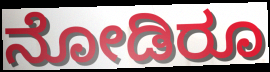
ನೋಡಿರೂ